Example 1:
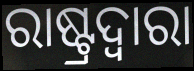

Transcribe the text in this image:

ରାଷ୍ଟ୍ରଦ୍ୱାରା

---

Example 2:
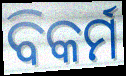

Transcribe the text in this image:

ବିକର୍ମ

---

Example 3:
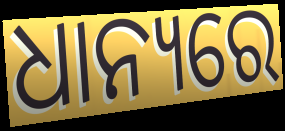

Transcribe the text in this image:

ଧାନ୍ୟରେ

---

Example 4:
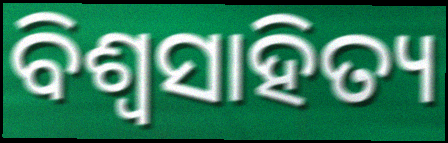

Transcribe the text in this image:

ବିଶ୍ଵସାହିତ୍ୟ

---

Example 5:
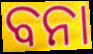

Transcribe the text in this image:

ବନା